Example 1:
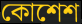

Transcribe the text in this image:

কোশেশ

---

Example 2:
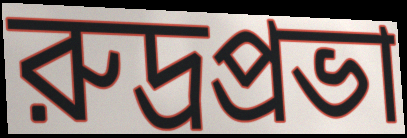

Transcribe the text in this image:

রুদ্রপ্রভা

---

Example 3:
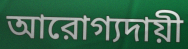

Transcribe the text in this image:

আরোগ্যদায়ী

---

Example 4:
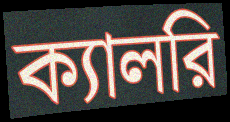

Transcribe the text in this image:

ক্যালরি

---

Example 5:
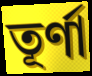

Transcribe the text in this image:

তূর্ণা